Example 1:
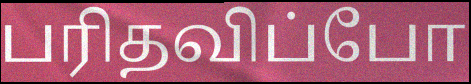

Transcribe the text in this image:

பரிதவிப்போ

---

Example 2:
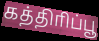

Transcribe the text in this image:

கத்திரிப்பூ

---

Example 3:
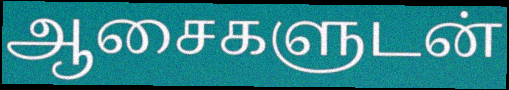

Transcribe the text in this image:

ஆசைகளுடன்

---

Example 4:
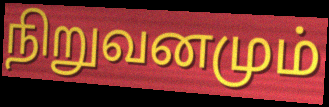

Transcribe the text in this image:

நிறுவனமும்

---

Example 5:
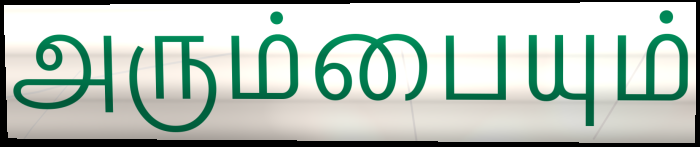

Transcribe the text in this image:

அரும்பையும்